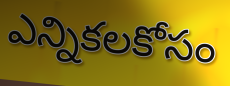
ఎన్నికలకోసం